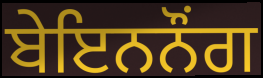
ਬੇਇਨਨੌੰਗ